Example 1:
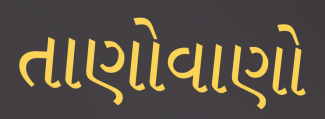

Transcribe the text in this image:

તાણોવાણો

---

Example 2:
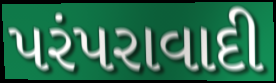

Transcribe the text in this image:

પરંપરાવાદી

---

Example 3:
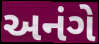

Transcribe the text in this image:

અનંગે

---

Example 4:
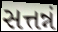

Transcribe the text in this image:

સત્તન્નં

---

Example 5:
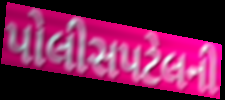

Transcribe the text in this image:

પોલીસપટેલની